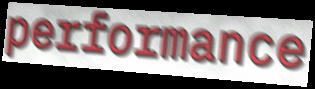
performance